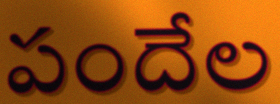
పందేల